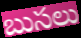
బుసలు